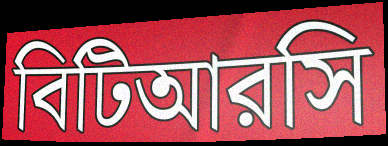
বিটিআরসি